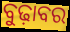
ବୁଢ଼ାବର